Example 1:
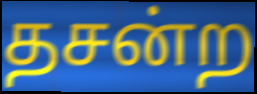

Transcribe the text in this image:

தசன்ற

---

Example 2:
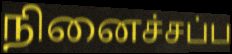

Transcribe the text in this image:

நினைச்சப்ப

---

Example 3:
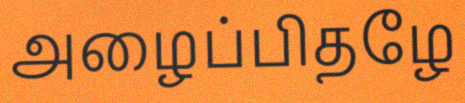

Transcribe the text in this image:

அழைப்பிதழே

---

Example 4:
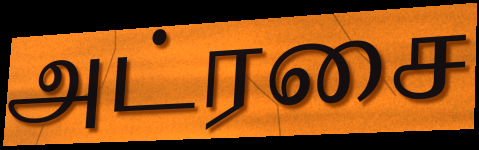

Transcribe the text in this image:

அட்ரசை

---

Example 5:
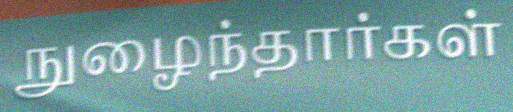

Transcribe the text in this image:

நுழைந்தார்கள்